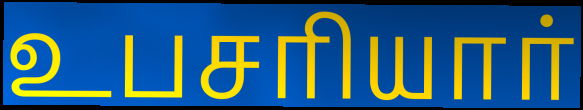
உபசரியார்